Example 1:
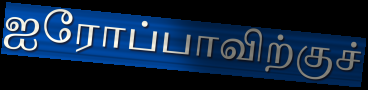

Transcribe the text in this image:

ஐரோப்பாவிற்குச்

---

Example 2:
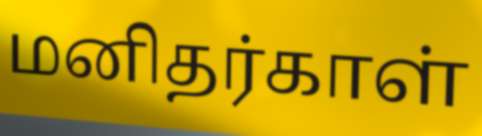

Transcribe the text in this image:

மனிதர்காள்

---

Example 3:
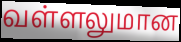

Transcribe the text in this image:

வள்ளலுமான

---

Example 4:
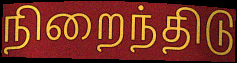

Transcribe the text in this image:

நிறைந்திடு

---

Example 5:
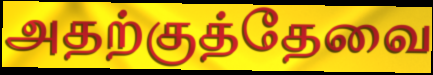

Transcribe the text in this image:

அதற்குத்தேவை